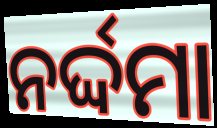
ନର୍ଦ୍ଦମା